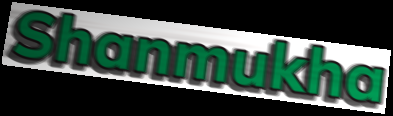
Shanmukha